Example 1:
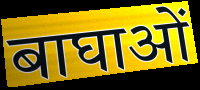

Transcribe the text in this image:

बाघाओं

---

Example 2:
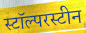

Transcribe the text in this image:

स्टॉल्परस्टीन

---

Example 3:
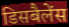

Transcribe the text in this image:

डिसबैलेंस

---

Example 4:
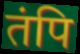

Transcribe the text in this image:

तंपि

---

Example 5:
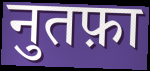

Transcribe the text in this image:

नुतफ़ा